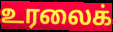
உரலைக்